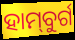
ହାମ୍‌ବୁର୍ଗ